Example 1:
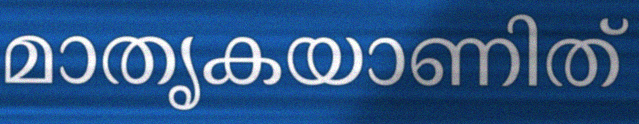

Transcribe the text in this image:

മാതൃകയാണിത്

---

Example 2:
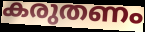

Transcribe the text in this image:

കരുതണം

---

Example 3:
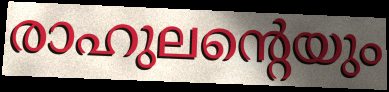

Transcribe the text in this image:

രാഹുലന്റെയും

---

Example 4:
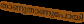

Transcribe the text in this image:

താണുതാണുപോയി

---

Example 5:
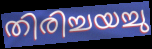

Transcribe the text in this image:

തിരിച്ചയച്ചു